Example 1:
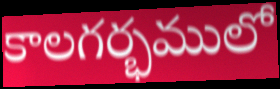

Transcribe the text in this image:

కాలగర్భములో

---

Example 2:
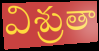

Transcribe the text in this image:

విశ్రుతా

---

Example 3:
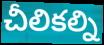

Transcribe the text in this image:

చీలికల్ని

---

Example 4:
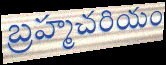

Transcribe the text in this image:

బ్రహ్మచరియం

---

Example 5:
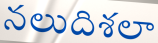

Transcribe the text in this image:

నలుదిశలా